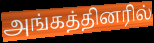
அங்கத்தினரில்